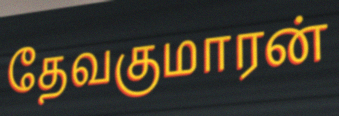
தேவகுமாரன்